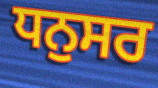
ਧਨੁਸਰ